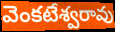
వెంకటేశ్వరావు